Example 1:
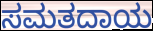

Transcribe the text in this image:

ಸಮತದಾಯ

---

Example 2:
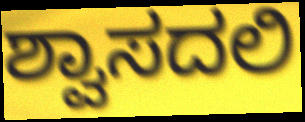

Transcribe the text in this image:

ಶ್ವಾಸದಲಿ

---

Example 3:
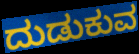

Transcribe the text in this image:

ದುಡುಕುವ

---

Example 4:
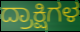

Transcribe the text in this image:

ದ್ರಾಕ್ಷಿಗಳ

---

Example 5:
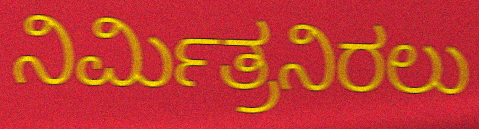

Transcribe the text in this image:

ನಿರ್ಮಿತ್ರನಿರಲು